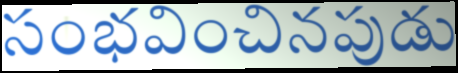
సంభవించినపుడు